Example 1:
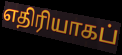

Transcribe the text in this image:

எதிரியாகப்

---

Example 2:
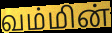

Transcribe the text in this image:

வம்மின்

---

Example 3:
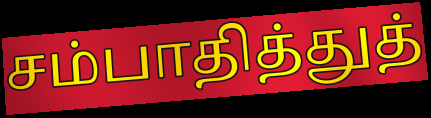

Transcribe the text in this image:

சம்பாதித்துத்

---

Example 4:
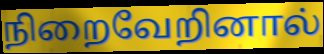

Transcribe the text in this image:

நிறைவேறினால்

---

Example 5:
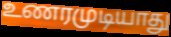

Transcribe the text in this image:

உணரமுடியாது